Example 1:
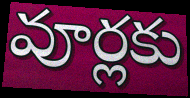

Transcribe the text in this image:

వూర్లకు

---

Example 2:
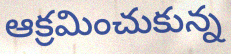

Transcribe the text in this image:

ఆక్రమించుకున్న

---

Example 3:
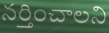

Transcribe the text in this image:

నర్తించాలని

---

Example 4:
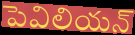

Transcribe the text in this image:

పెవిలియన్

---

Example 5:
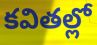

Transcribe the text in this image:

కవితల్లో